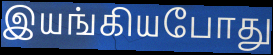
இயங்கியபோது